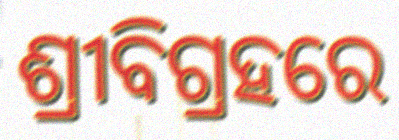
ଶ୍ରୀବିଗ୍ରହରେ